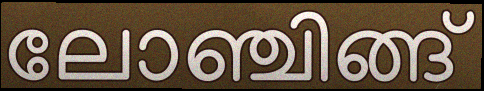
ലോഞ്ചിങ്ങ്